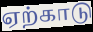
ஏற்காடு